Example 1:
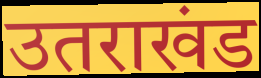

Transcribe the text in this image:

उतराखंड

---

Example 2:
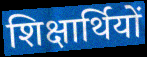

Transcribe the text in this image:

शिक्षार्थियों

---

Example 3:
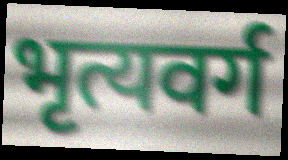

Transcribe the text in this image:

भृत्यवर्ग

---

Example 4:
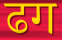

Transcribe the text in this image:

ढग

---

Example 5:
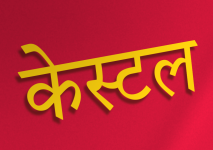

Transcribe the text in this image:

केस्टल